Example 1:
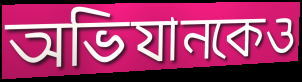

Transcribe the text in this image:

অভিযানকেও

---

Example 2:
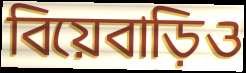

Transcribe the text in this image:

বিয়েবাড়িও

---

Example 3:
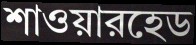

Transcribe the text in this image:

শাওয়ারহেড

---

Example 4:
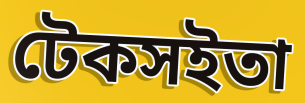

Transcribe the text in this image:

টেকসইতা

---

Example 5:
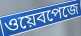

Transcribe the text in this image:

ওয়েবপেজে